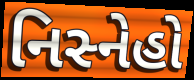
નિસ્નેહો